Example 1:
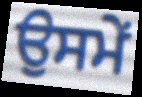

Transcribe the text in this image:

ਉਸਮੇਂ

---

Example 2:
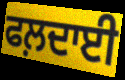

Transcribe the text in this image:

ਫਲ਼ਦਾਈ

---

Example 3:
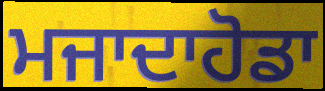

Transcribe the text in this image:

ਮਜਾਦਾਹੋਡਾ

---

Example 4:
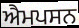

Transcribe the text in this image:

ਐਮਪਸਨ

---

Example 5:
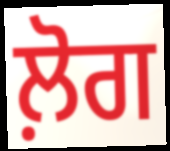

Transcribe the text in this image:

ਲ਼ੋਗ